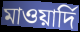
মাওয়ার্দি